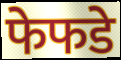
फेफडे